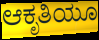
ಆಕೃತಿಯೂ